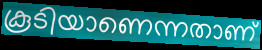
കൂടിയാണെന്നതാണ്